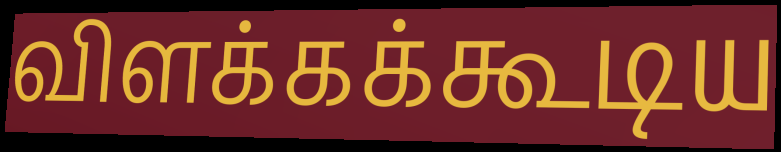
விளக்கக்கூடிய